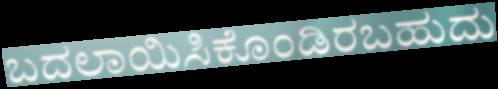
ಬದಲಾಯಿಸಿಕೊಂಡಿರಬಹುದು